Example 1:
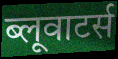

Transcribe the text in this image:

ब्लूवाटर्स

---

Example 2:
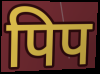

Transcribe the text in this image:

पिप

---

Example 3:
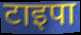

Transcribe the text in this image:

टाइपा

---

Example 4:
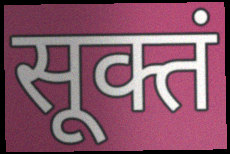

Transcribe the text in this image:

सूक्तं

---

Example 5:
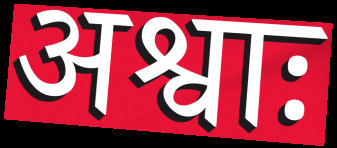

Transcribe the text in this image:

अश्वाः